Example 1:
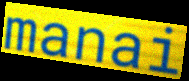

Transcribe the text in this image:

manai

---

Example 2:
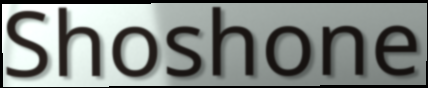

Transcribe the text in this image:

Shoshone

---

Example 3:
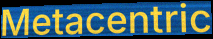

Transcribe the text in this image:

Metacentric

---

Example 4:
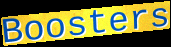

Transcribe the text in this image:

Boosters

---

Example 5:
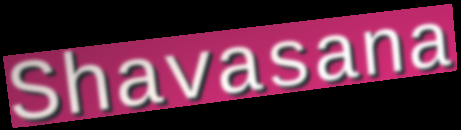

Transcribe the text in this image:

Shavasana